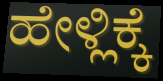
ಹೇಳ್ಲಿಕ್ಕೆ